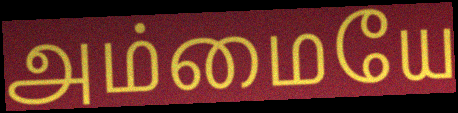
அம்மையே